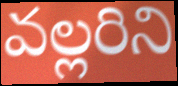
వల్లరిని